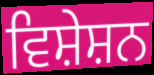
ਵਿਸ਼ੇਸ਼ਨ